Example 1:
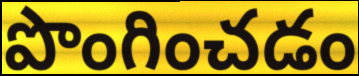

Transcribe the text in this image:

పొంగించడం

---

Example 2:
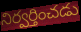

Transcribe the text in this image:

నిర్వర్తించడు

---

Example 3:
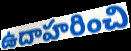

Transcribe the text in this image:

ఉదాహరించి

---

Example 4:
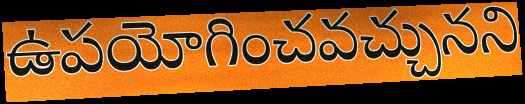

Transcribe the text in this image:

ఉపయోగించవచ్చునని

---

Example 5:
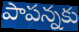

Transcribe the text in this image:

పాపన్నకు